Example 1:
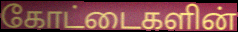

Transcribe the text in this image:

கோட்டைகளின்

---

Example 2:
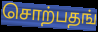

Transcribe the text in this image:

சொற்பதங்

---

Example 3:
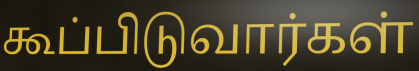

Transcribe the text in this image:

கூப்பிடுவார்கள்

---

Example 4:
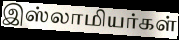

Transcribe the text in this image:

இஸ்லாமியர்கள்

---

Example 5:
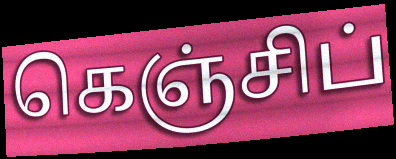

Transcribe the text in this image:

கெஞ்சிப்